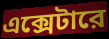
এক্সেটারে